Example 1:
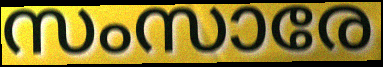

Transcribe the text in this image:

സംസാരേ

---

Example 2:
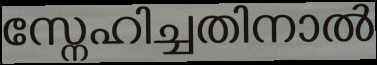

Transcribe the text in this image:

സ്നേഹിച്ചതിനാൽ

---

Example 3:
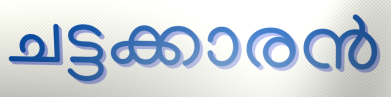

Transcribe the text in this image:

ചട്ടക്കാരൻ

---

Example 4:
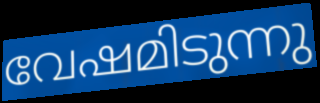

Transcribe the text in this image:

വേഷമിടുന്നു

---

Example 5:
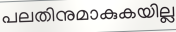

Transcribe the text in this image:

പലതിനുമാകുകയില്ല